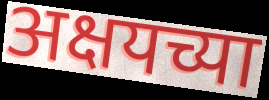
अक्षयच्या